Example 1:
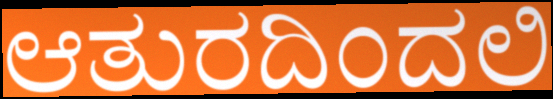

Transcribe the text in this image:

ಆತುರದಿಂದಲಿ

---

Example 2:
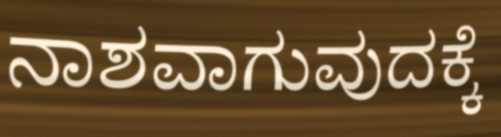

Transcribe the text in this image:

ನಾಶವಾಗುವುದಕ್ಕೆ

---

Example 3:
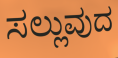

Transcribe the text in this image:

ಸಲ್ಲುವುದ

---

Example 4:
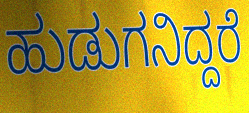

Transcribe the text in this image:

ಹುಡುಗನಿದ್ದರೆ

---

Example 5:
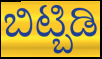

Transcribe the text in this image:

ಬಿಟ್ಬಿಡಿ